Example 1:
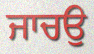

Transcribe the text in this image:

ਜਾਚਉ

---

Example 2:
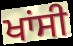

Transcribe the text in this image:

ਖਾਂਸੀ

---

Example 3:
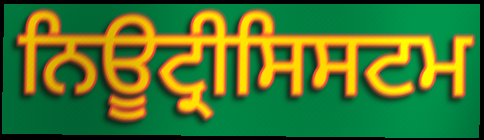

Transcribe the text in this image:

ਨਿਊਟ੍ਰੀਸਿਸਟਮ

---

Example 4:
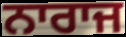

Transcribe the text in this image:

ਨਾਰਾਜ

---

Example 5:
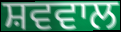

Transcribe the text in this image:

ਸ਼ਵਵਾਲ